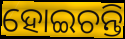
ହୋଇଚନ୍ତି